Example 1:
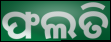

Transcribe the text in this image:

ଫଲତି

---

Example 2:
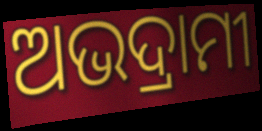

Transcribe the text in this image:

ଅଭଦ୍ରାମୀ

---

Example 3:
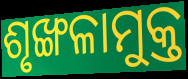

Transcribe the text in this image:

ଶୃଙ୍ଖଳାମୁକ୍ତ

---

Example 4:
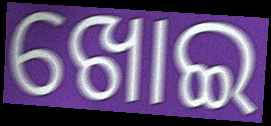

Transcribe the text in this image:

ଖୋଇ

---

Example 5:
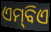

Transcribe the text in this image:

ଏମ୍‌ବିଏ